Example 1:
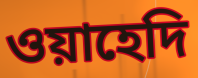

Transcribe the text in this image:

ওয়াহেদি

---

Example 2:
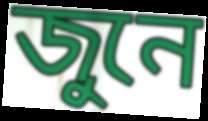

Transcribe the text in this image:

জুনে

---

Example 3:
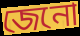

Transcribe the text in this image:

জেনো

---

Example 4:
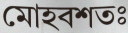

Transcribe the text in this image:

মোহবশতঃ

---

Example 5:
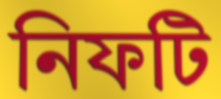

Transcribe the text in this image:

নিফটি